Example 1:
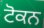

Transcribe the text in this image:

ਟੋਕਨ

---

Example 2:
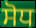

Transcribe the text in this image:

ਸੋਧ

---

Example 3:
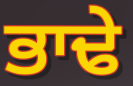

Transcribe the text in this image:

ਭਾਢੇ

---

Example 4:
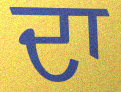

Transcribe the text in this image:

ਦਾ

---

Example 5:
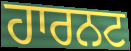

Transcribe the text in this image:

ਹਾਰਨਟ